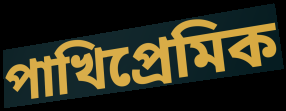
পাখিপ্রেমিক